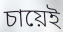
চায়েই